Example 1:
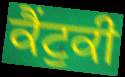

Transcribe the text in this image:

ਕੈਂਟੁਕੀ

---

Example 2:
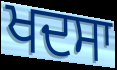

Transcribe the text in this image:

ਖਦਸਾ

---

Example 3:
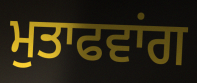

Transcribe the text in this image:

ਮੁਤਾਫਵਾਂਗ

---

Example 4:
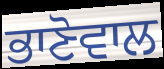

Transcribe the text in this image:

ਭਾਣੋਵਾਲ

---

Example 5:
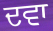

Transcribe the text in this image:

ਦਵਾ